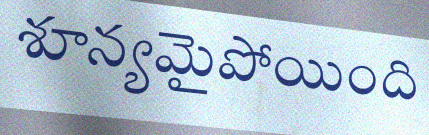
శూన్యమైపోయింది